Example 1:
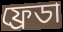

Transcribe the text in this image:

ফ্রেডা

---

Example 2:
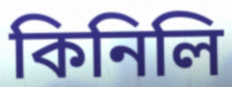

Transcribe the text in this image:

কিনিলি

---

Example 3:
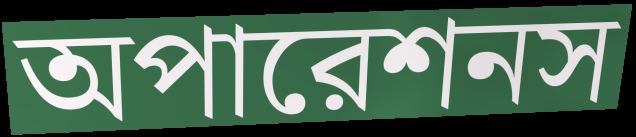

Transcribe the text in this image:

অপারেশনস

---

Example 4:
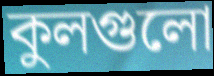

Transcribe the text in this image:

কুলগুলো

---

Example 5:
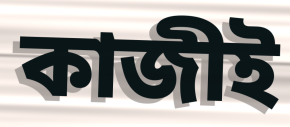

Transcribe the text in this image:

কাজীই